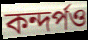
কন্দর্পও